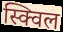
स्क्विल